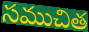
సముచిత